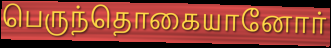
பெருந்தொகையானோர்